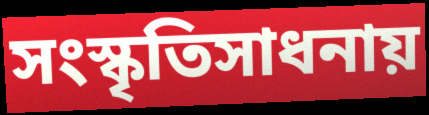
সংস্কৃতিসাধনায়